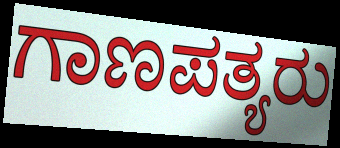
ಗಾಣಪತ್ಯರು